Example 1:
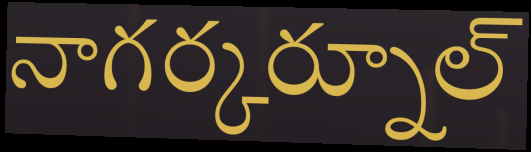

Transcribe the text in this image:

నాగర్కర్నూల్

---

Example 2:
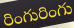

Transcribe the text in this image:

రింగురింగు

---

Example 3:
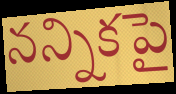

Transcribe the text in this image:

నన్నికపై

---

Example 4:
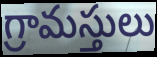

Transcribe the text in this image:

గ్రామస్తులు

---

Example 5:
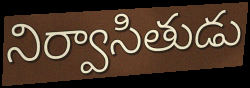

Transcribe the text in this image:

నిర్వాసితుడు